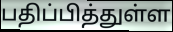
பதிப்பித்துள்ள